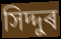
সিদ্দুৰ